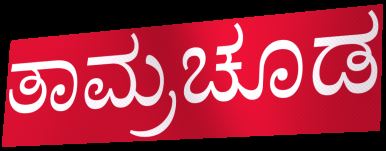
ತಾಮ್ರಚೂಡ